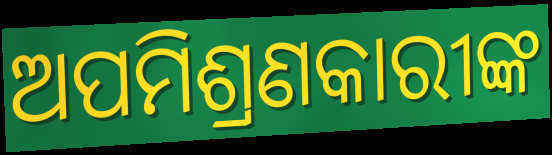
ଅପମିଶ୍ରଣକାରୀଙ୍କ